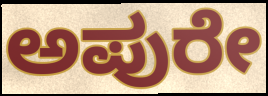
ಅಪುರೇ